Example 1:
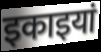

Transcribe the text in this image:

इकाइयां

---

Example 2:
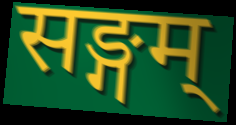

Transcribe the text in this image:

सङ्गम्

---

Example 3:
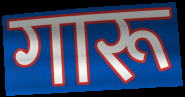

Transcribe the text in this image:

गारू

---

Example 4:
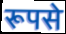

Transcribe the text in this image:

रूपसे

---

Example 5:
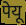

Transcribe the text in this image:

पेयू